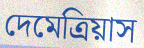
দেমেত্রিয়াস